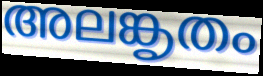
അലങ്കൃതം